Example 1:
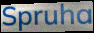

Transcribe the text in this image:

Spruha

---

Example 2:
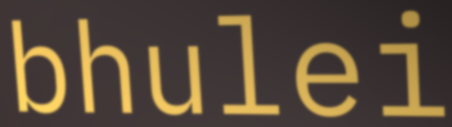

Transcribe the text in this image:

bhulei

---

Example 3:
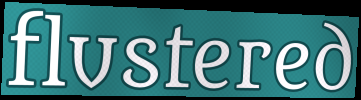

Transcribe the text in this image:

flustered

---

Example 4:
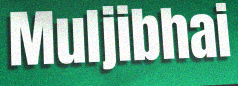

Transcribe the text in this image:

Muljibhai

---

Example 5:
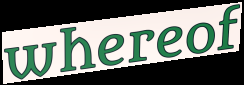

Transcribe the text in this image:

whereof